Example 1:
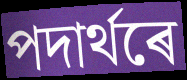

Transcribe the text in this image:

পদাৰ্থৰে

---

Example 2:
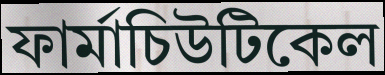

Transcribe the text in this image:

ফাৰ্মাচিউটিকেল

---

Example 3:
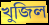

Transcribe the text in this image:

খুজিল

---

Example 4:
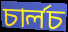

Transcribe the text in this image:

চাৰ্লচ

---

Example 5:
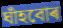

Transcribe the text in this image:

ঘাঁহবোৰ